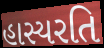
હાસ્યરતિ